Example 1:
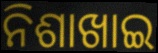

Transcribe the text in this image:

ନିଶାଖାଇ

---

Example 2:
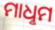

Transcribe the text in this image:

ମାଧୢମ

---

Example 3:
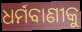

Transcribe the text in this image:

ଧର୍ମବାଣୀକୁ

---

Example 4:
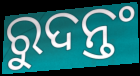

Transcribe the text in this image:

ରୁଦନ୍ତଂ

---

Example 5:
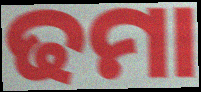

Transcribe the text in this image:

ଢମା